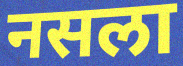
नसला